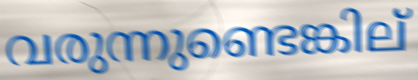
വരുന്നുണ്ടെങ്കില്